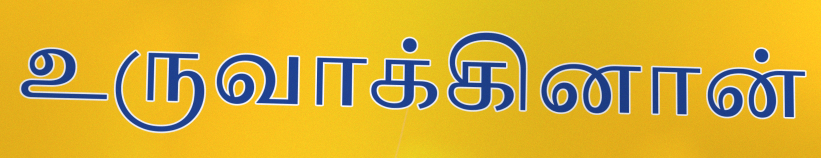
உருவாக்கினான்